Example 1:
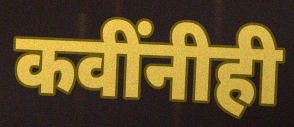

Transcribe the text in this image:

कवींनीही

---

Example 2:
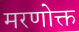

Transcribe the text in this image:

मरणोक्त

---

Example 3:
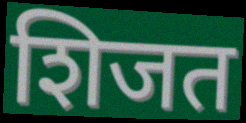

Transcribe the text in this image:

शिजत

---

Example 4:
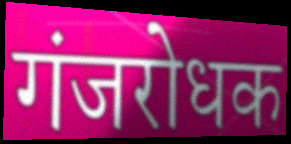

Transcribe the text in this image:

गंजरोधक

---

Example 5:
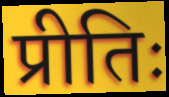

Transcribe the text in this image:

प्रीतिः